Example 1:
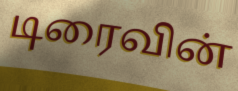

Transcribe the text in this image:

டிரைவின்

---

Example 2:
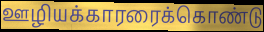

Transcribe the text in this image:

ஊழியக்காரரைக்கொண்டு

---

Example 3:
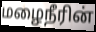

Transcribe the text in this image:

மழைநீரின்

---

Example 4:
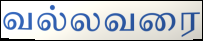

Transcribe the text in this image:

வல்லவரை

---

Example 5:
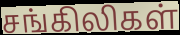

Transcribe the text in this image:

சங்கிலிகள்